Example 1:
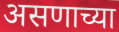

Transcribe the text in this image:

असणाच्या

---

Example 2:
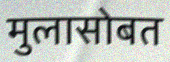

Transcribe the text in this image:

मुलासोबत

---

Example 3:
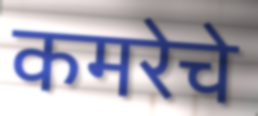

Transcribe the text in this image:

कमरेचे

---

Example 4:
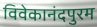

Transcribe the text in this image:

विवेकानंदपुरम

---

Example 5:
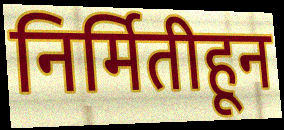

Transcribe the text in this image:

निर्मितीहून